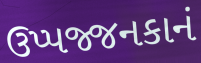
ઉપ્પજ્જનકાનં